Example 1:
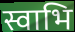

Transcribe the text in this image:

स्वाभि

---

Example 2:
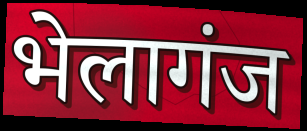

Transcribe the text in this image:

भेलागंज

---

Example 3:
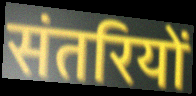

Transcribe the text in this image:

संतरियों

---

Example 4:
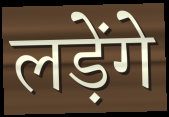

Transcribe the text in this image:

लड़ेंगे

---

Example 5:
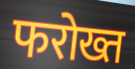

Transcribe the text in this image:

फरोख्त